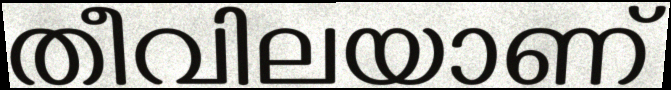
തീവിലയാണ്